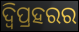
ଦ୍ବିପ୍ରହରର